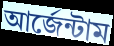
আর্জেন্টাম